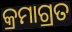
କ୍ରମାଗ୍ରତ